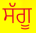
ਸੱਗੂ